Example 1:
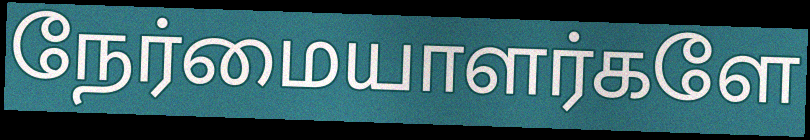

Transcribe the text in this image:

நேர்மையாளர்களே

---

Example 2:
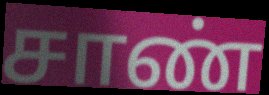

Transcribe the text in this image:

சாண்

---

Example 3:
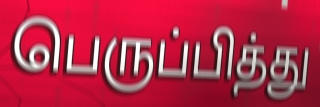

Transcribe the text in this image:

பெருப்பித்து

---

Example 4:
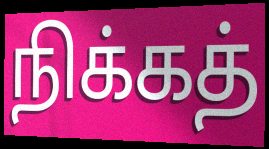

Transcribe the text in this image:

நிக்கத்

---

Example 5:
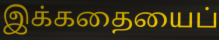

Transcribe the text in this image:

இக்கதையைப்